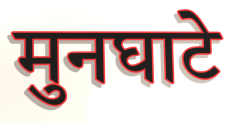
मुनघाटे